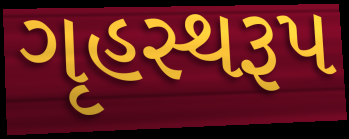
ગૃહસ્થરૂપ